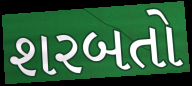
શરબતો